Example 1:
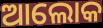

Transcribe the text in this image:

ଆଲୋକ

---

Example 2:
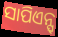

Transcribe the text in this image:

ସାପିଏନ୍ସ୍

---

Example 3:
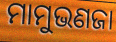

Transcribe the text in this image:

ମାମୁଭଣଜା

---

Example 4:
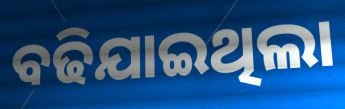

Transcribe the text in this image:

ବଢିଯାଇଥିଲା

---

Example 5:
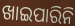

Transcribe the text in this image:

ଖାଇପାରିନି